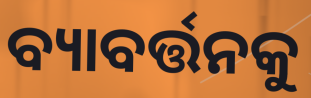
ବ୍ୟାବର୍ତ୍ତନକୁ